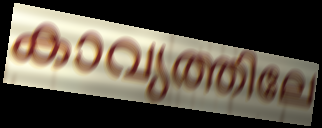
കാവ്യത്തിലേ